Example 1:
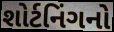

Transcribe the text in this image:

શોર્ટનિંગનો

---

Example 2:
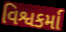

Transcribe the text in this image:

વિશ્વકર્મા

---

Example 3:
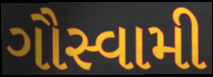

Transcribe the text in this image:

ગૌસ્વામી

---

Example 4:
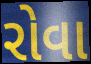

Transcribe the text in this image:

રોવા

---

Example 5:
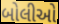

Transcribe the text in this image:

બોલીઓ